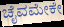
ಚೈವಮೇಕೇ